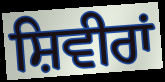
ਸ਼ਿਵੀਰਾਂ